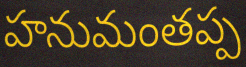
హనుమంతప్ప